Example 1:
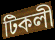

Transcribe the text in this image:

টিকলী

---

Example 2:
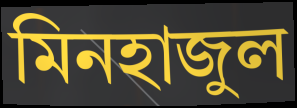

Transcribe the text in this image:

মিনহাজুল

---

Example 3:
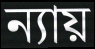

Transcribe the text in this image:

ন্যায়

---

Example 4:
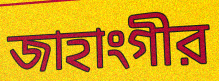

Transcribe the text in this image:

জাহাংগীর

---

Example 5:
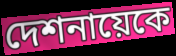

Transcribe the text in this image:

দেশনায়েকে